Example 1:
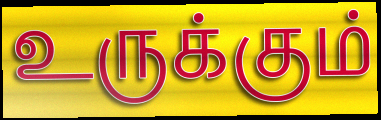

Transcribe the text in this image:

உருக்கும்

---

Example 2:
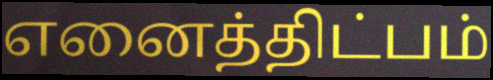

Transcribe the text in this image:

எனைத்திட்பம்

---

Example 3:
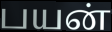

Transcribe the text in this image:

பயன்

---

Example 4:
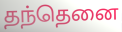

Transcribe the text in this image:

தந்தெனை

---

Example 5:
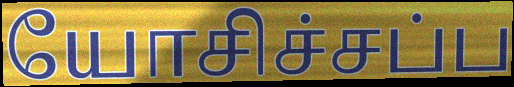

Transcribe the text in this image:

யோசிச்சப்ப